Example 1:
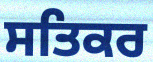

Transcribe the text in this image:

ਸਤਿਕਰ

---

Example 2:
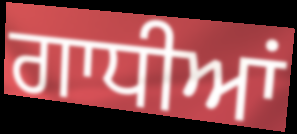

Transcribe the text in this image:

ਗਾਧੀਆਂ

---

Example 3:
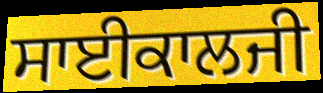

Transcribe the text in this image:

ਸਾਈਕਾਲਜੀ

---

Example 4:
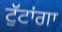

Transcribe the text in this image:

ਟੁੱਟਾਂਗਾ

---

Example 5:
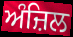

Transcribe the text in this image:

ਅੰਜ਼ਿਲ